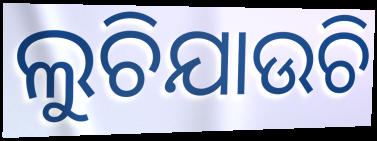
ଲୁଚିଯାଉଚି